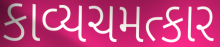
કાવ્યચમત્કાર